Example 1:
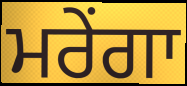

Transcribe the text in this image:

ਮਰੇਂਗਾ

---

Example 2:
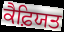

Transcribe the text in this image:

ਕੈਫ਼ਿਯਤ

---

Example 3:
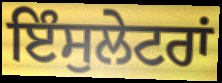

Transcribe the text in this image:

ਇੰਸੁਲੇਟਰਾਂ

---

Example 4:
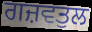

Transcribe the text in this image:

ਗਜ਼ਵਤੁਲ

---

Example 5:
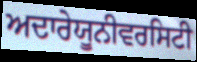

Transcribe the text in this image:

ਅਦਾਰੇਯੂਨੀਵਰਸਿਟੀ